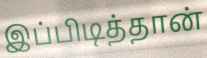
இப்பிடித்தான்